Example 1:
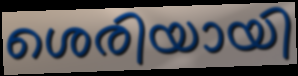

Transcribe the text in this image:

ശെരിയായി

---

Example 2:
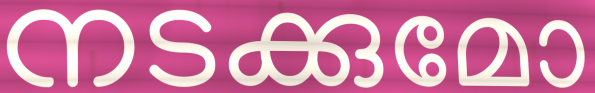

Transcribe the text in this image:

നടക്കുമോ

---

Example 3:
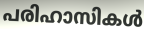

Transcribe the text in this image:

പരിഹാസികൾ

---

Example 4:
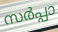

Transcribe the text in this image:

സർപ്പാ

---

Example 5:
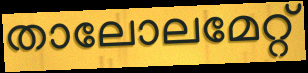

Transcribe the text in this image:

താലോലമേറ്റ്